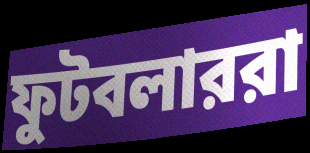
ফুটবলাররা